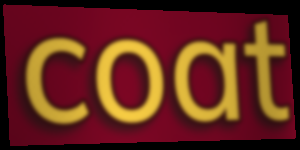
coat